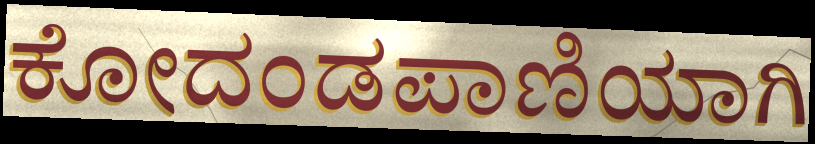
ಕೋದಂಡಪಾಣಿಯಾಗಿ